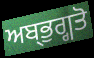
ਅਬ੍ਭੁਗ੍ਗਤੋ